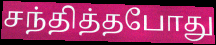
சந்தித்தபோது